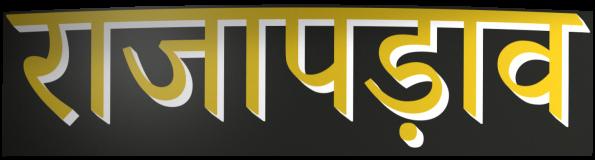
राजापड़ाव